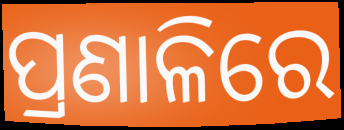
ପ୍ରଣାଳିରେ